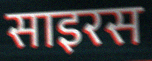
साइरस